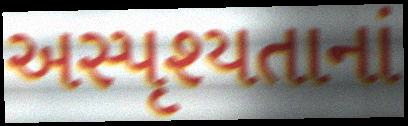
અસ્પૃશ્યતાનાં